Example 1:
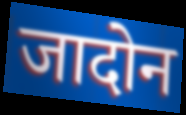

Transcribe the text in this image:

जादोन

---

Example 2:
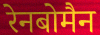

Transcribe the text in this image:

रेनबोमैन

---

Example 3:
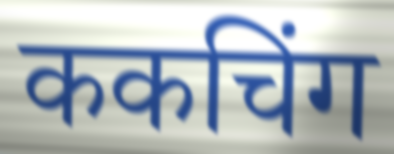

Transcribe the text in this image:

ककचिंग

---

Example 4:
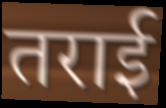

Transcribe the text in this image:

तराई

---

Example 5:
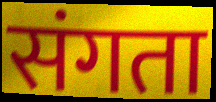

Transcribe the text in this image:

संगता